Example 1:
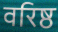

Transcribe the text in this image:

वरिष्ठ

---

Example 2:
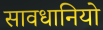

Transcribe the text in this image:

सावधानियो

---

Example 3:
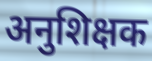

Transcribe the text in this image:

अनुशिक्षक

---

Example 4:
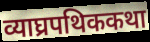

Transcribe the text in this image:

व्याघ्रपथिककथा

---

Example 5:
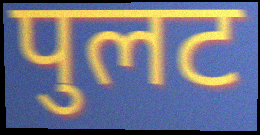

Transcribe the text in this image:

पुलट